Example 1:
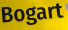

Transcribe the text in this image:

Bogart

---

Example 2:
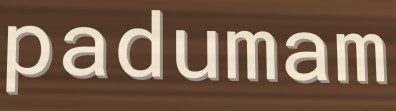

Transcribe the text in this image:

padumam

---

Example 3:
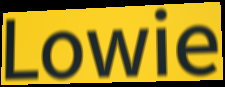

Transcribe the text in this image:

Lowie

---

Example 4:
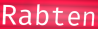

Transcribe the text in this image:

Rabten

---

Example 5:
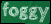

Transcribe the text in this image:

foggy